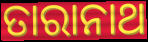
ତାରାନାଥ